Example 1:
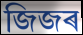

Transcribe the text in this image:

জিজৰ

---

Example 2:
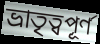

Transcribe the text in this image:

ভ্ৰাতৃত্বপূৰ্ণ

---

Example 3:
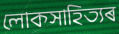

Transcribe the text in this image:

লোকসাহিত্যৰ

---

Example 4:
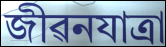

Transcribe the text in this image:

জীৱনযাত্ৰা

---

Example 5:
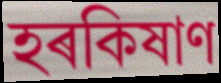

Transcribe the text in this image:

হৰকিষাণ